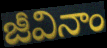
జీవినాం